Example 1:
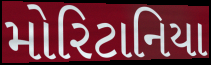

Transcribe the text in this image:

મોરિટાનિયા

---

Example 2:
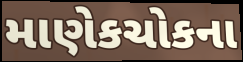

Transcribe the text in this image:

માણેકચોકના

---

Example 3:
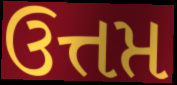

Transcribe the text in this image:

ઉત્તપ્ત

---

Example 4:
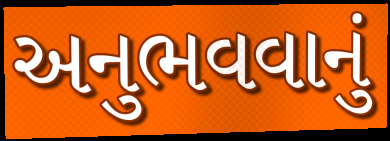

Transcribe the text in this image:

અનુભવવાનું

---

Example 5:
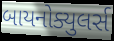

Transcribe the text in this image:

બાયનોક્યુલર્સ